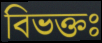
বিভক্তঃ